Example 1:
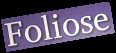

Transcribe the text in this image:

Foliose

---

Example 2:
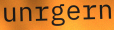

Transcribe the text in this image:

unrgern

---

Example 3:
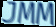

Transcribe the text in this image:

JMM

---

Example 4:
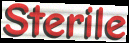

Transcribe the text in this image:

Sterile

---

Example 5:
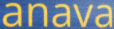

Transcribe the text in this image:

anava